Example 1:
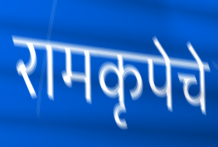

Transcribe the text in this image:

रामकृपेचे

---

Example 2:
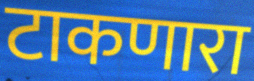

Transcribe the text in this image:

टाकणारा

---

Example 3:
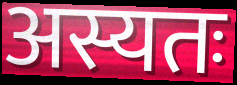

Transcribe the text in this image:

अस्यतः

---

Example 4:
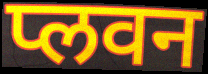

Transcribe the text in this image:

प्लवन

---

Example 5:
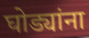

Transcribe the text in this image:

घोड्यांना